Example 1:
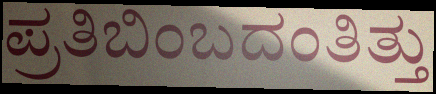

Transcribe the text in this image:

ಪ್ರತಿಬಿಂಬದಂತಿತ್ತು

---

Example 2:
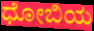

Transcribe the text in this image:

ಧೋಬಿಯ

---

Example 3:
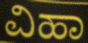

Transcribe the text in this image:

ವಿಹಾ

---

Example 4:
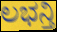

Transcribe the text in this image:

ಲಭನ್ತಿ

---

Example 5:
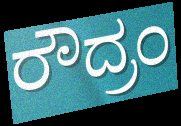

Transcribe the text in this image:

ರೌದ್ರಂ